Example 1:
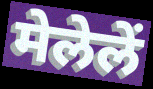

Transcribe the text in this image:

मेलेलें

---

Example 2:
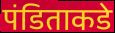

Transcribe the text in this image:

पंडिताकडे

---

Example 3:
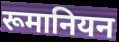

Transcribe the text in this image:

रूमानियन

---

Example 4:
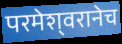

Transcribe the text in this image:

परमेश्वरानेच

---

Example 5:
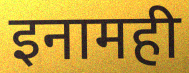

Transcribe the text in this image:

इनामही